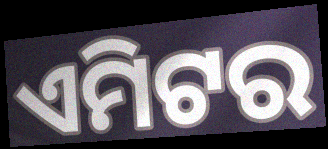
ଏମିଟର